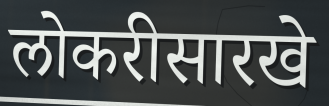
लोकरीसारखे